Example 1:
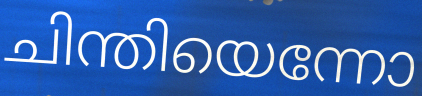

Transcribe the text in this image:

ചിന്തിയെന്നോ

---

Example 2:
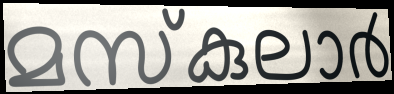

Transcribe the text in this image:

മസ്കുലാർ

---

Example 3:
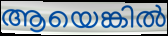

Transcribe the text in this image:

ആയെങ്കിൽ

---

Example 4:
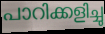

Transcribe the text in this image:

പാറിക്കളിച്ചു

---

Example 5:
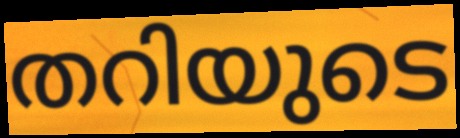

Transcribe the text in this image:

തറിയുടെ